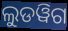
ଲୁଡୱିଗ